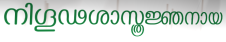
നിഗൂഢശാസ്ത്രജ്ഞനായ